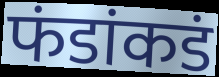
फंडांकडं